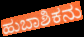
ಹುಬಾಶಿಕನು